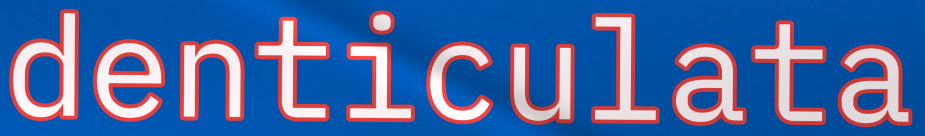
denticulata